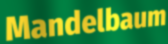
Mandelbaum